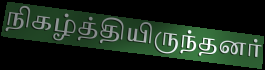
நிகழ்த்தியிருந்தனர்